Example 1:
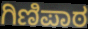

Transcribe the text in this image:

ಗಿಣಿಪಾಠ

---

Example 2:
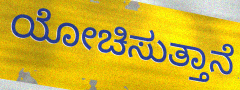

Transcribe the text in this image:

ಯೋಚಿಸುತ್ತಾನೆ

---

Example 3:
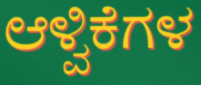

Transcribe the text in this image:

ಆಳ್ವಿಕೆಗಳ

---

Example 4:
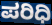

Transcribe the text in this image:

ಪರಿಧಿ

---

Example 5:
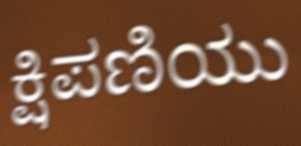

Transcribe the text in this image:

ಕ್ಷಿಪಣಿಯು